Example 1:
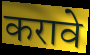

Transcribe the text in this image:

करावे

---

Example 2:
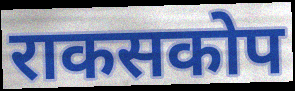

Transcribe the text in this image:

राकसकोप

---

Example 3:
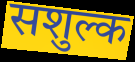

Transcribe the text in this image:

सशुल्क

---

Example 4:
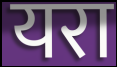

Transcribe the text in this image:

यरा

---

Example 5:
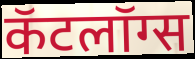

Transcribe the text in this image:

कॅटलॉग्स